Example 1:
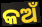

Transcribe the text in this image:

କଅଁ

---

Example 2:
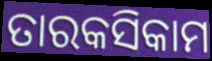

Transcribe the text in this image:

ତାରକସିକାମ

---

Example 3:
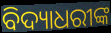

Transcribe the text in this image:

ବିଦ୍ୟାଧରୀଙ୍କ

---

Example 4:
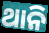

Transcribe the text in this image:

ଥାନି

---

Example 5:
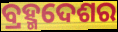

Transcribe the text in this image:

ବ୍ରହ୍ମଦେଶର